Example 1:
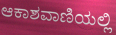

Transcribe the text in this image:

ಆಕಾಶವಾಣಿಯಲ್ಲಿ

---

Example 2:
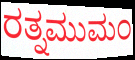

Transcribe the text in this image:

ರತ್ನಮುಮಂ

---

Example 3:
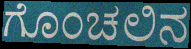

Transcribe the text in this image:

ಗೊಂಚಲಿನ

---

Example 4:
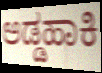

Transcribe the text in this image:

ಅಡ್ಡಹಾಕಿ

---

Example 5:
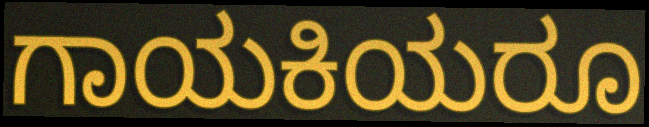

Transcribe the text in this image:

ಗಾಯಕಿಯರೂ